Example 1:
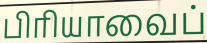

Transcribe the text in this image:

பிரியாவைப்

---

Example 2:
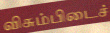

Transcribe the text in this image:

விசும்பிடைச்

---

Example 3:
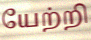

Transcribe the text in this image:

யேற்றி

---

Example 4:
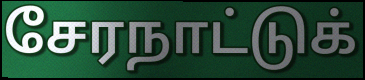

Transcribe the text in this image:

சேரநாட்டுக்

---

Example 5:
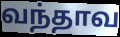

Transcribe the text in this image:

வந்தாவ